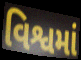
વિશ્વમાં